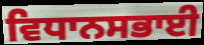
ਵਿਧਾਨਸਭਾਈ